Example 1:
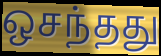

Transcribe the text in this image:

ஒசந்தது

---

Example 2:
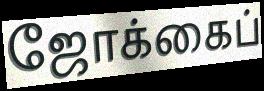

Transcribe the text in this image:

ஜோக்கைப்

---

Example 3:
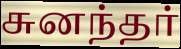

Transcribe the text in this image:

சுனந்தர்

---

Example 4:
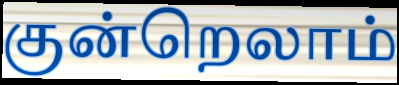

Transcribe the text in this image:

குன்றெலாம்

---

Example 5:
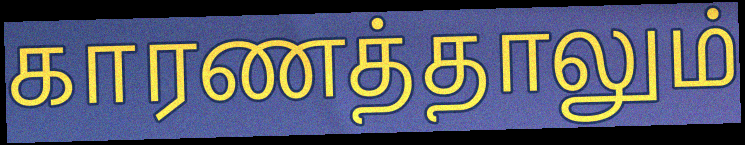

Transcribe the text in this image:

காரணத்தாலும்